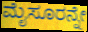
ಮೈಸೂರನ್ನೇ